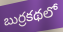
బుర్రకథలో